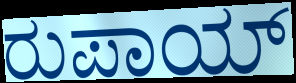
ರುಪಾಯ್